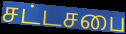
சட்டசபை